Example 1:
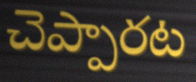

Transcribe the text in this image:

చెప్పారట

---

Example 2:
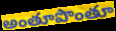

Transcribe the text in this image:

అంతూపొంతూ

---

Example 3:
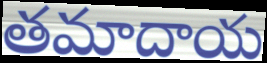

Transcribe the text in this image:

తమాదాయ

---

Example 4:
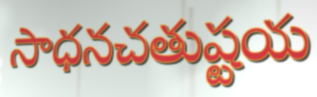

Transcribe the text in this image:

సాధనచతుష్టయ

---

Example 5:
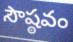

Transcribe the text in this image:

సౌష్ఠవం